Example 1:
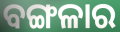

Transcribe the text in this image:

ବଙ୍ଗଳାର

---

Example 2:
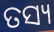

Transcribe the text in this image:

ତସ୍ୟ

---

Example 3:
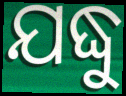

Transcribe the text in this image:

ଯଦ୍ଧୁ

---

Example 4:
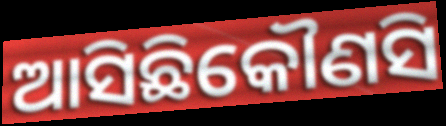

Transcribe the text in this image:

ଆସିଛିକୌଣସି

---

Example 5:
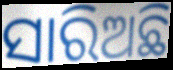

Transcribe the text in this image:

ସାରିଅଛି